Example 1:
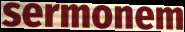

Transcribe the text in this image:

sermonem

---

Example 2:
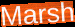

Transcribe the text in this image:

Marsh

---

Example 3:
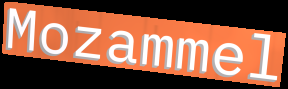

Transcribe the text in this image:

Mozammel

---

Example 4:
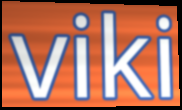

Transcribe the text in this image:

viki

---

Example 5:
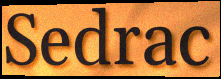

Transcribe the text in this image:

Sedrac